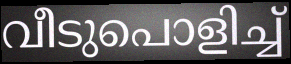
വീടുപൊളിച്ച്